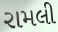
રામલી